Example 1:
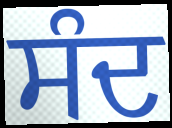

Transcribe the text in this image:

ਸੰਦ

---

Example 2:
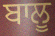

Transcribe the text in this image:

ਬਾਲੂ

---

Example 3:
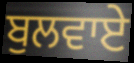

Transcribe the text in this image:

ਬੁਲਵਾਏ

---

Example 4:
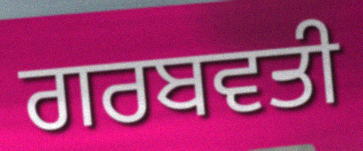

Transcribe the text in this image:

ਗਰਬਵਤੀ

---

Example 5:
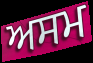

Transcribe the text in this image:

ਅਸਮ